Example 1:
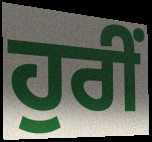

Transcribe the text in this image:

ਹੁਰੀਂ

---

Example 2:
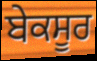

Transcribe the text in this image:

ਬੇਕਸੂਰ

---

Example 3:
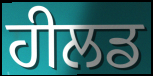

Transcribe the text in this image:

ਹੀਲਡ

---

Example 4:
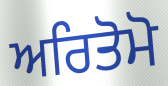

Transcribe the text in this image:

ਅਰਿਤੋਮੋ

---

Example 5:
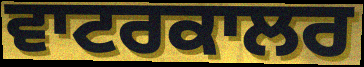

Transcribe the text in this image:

ਵਾਟਰਕਾਲਰ